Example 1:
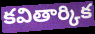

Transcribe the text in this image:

కవితార్కిక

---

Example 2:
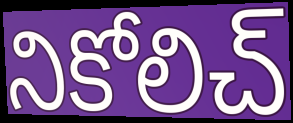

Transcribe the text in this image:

నికోలిచ్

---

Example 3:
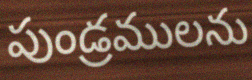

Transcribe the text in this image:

పుండ్రములను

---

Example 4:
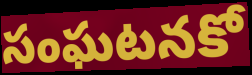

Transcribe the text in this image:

సంఘటనకో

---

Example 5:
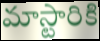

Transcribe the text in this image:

మాస్టారికి